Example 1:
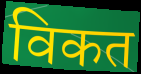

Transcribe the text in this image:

विकत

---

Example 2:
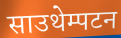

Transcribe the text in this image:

साउथेम्पटन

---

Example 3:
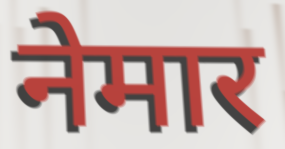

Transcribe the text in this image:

नेमार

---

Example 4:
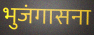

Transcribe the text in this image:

भुजंगासना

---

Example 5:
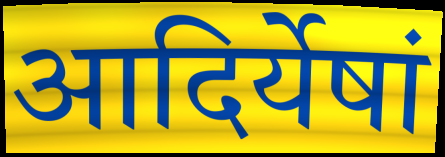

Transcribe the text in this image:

आदिर्येषां